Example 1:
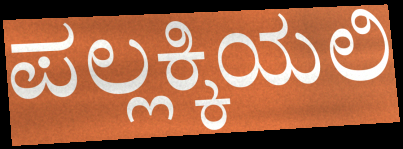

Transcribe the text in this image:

ಪಲ್ಲಕ್ಕಿಯಲಿ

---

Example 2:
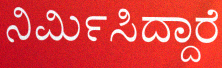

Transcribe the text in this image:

ನಿರ್ಮಿಸಿದ್ದಾರೆ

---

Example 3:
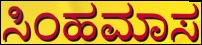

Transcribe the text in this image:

ಸಿಂಹಮಾಸ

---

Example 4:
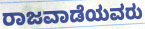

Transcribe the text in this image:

ರಾಜವಾಡೆಯವರು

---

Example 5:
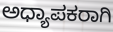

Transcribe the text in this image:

ಅಧ್ಯಾಪಕರಾಗಿ